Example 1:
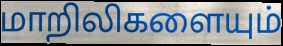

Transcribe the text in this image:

மாறிலிகளையும்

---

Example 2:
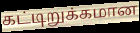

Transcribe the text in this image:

கட்டிறுக்கமான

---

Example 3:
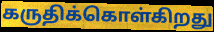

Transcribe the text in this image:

கருதிக்கொள்கிறது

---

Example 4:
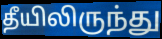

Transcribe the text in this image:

தீயிலிருந்து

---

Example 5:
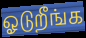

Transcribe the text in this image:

ஓடுறீங்க